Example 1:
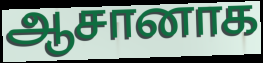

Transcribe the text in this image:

ஆசானாக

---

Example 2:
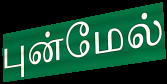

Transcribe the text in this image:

புன்மேல்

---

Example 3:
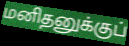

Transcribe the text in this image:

மனிதனுக்குப்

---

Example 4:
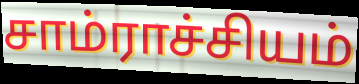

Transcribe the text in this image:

சாம்ராச்சியம்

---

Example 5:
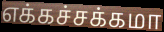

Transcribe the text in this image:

எக்கச்சக்கமா